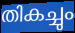
തികച്ചും